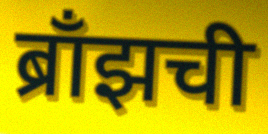
ब्राँझची